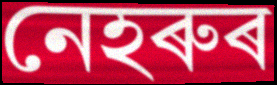
নেহৰুৰ